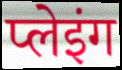
प्लेइंग